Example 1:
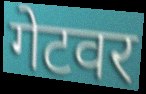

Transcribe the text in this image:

गेटवर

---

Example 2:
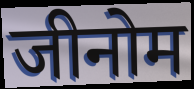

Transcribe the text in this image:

जीनोम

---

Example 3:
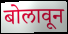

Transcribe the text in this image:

बोलावून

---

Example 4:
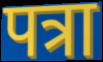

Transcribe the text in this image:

पत्रा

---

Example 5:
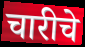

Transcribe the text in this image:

चारीचे